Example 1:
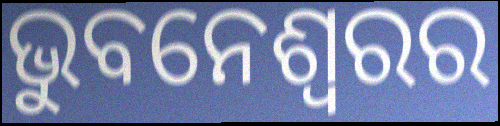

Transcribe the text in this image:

ଭୁବନେଶ୍ୱରର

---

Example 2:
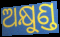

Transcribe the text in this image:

ଅକ୍ଷୁଣ୍ଡ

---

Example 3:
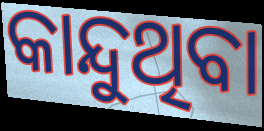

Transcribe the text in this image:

କାନ୍ଦୁଥିବା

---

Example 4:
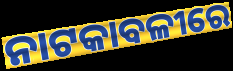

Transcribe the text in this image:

ନାଟକାବଳୀରେ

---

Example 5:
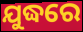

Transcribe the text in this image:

ଯୁଦ୍ଧରେ